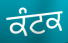
ਕੰਟਕ